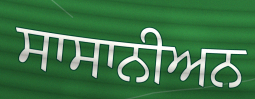
ਸਾਸਾਨੀਅਨ